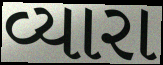
વ્યારા